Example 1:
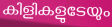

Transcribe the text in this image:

കിളികളുടേയും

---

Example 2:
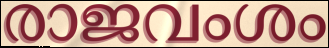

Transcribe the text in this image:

രാജവംശം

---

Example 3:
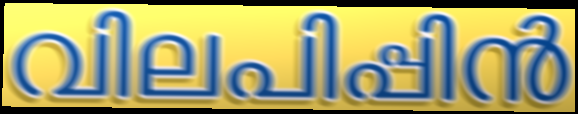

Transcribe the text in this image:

വിലപിപ്പിൻ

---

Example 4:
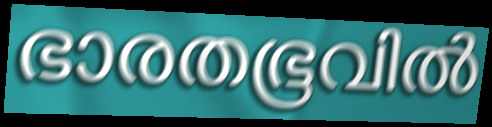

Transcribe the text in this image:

ഭാരതഭൂവിൽ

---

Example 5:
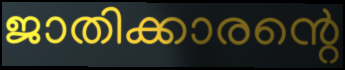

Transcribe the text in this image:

ജാതിക്കാരന്റെ